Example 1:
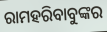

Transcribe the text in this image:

ରାମହରିବାବୁଙ୍କର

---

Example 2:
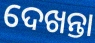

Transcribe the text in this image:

ଦେଖନ୍ତା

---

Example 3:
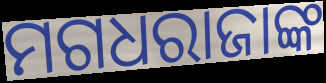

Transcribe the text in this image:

ମଗଧରାଜାଙ୍କ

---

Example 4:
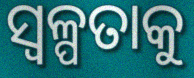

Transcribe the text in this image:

ସ୍ଵଳ୍ପତାକୁ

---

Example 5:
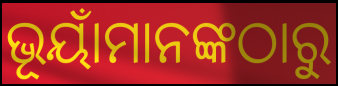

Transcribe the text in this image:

ଭୂୟାଁମାନଙ୍କଠାରୁ